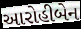
આરોહીબેન